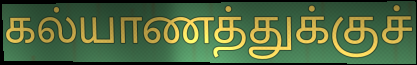
கல்யாணத்துக்குச்